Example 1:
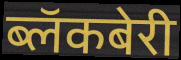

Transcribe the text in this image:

ब्लॅकबेरी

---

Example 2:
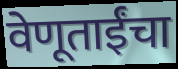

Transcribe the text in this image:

वेणूताईंचा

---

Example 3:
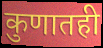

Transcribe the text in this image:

कुणातही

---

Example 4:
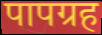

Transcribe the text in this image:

पापग्रह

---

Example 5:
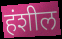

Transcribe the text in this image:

हंशील